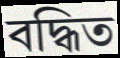
বদ্ধিত